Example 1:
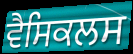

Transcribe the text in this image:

ਵੈਸਿਕਲਸ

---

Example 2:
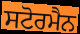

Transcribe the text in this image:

ਸਟੋਰਮੈਨ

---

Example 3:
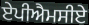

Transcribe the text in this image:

ਏਪੀਐਮਸੀਏ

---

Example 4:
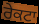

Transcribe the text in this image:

ਰੇਕਟਾ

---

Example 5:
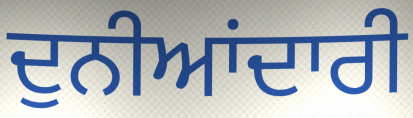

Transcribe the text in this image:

ਦੁਨੀਆਂਦਾਰੀ